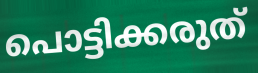
പൊട്ടിക്കരുത്